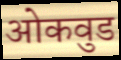
ओकवुड